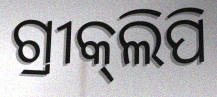
ଗ୍ରୀକ୍‌ଲିପି